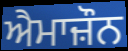
ਐਮਾਜ਼ੌਨ